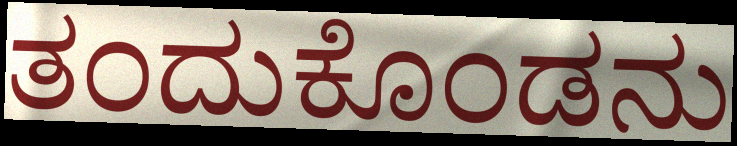
ತಂದುಕೊಂಡನು